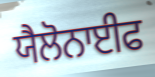
ਯੈਲੋਨਾਈਫ